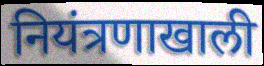
नियंत्रणाखाली